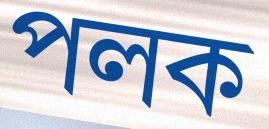
পলক